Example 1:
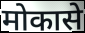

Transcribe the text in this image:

मोकासे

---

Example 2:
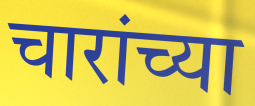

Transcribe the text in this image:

चारांच्या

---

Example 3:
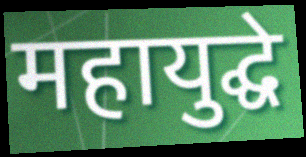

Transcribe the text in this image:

महायुद्घे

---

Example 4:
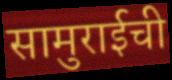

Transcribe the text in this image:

सामुराईची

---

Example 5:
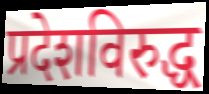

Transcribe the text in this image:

प्रदेशविरुद्ध